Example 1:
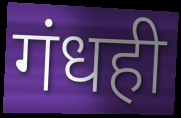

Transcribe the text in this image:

गंधही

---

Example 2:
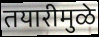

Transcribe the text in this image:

तयारीमुळे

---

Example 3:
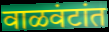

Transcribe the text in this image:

वाळवंटांत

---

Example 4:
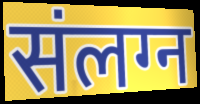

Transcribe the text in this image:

संलग्न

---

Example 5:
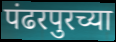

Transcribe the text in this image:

पंढरपुरच्या